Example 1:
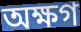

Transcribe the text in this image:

অক্ষগ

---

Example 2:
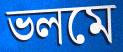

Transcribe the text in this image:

ভলমে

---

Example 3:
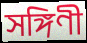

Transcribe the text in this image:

সঙ্গিণী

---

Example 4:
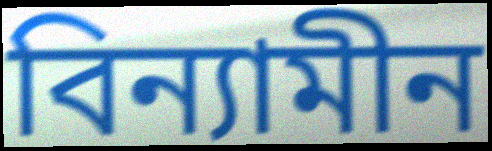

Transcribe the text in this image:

বিন্যামীন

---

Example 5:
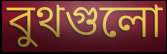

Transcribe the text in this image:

বুথগুলো